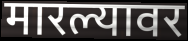
मारल्यावर